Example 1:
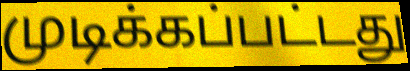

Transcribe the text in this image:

முடிக்கப்பட்டது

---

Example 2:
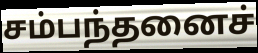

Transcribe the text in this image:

சம்பந்தனைச்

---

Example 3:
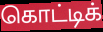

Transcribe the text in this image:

கொட்டிக்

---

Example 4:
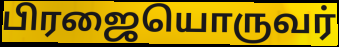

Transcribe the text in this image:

பிரஜையொருவர்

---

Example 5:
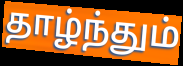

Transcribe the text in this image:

தாழ்ந்தும்